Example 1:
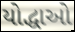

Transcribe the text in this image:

યોદ્ધાઓ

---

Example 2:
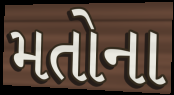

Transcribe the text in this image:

મતોના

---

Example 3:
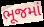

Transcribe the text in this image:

ભૂજમાં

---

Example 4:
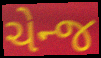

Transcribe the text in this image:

ચેન્જ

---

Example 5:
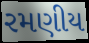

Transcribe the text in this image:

રમણીય